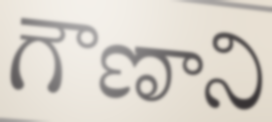
గౌణాని